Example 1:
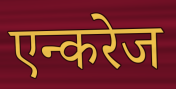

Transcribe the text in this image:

एन्करेज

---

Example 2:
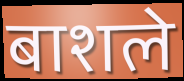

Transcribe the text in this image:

बाशले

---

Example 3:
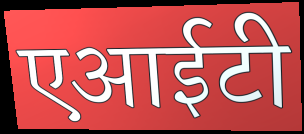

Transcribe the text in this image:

एआईटी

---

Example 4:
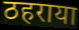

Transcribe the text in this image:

ठहराया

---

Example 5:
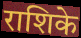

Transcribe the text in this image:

राशिके